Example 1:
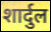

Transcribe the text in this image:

शार्दुल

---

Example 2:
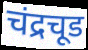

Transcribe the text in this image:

चंद्रचूड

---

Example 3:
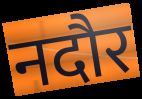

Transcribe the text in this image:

नदौर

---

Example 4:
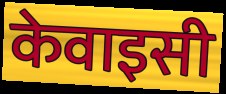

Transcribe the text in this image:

केवाइसी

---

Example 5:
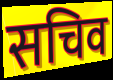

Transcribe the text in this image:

सचिव